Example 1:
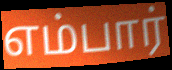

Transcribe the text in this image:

எம்பார்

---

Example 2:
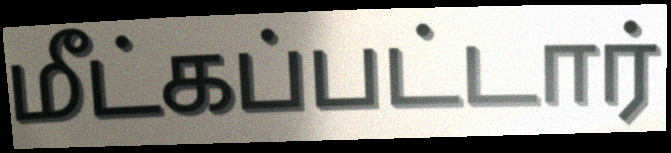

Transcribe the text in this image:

மீட்கப்பட்டார்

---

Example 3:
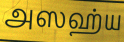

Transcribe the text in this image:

அஸஹ்ய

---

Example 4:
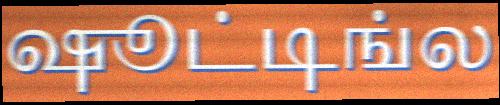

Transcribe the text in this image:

ஷூட்டிங்ல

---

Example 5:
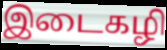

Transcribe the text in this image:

இடைகழி